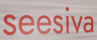
seesiva